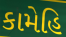
કામેહિ